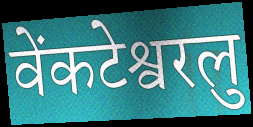
वेंकटेश्वरलु